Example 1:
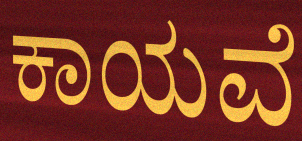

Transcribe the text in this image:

ಕಾಯವೆ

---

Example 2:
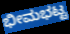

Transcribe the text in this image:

ಭೀಮಭಟ್ಟ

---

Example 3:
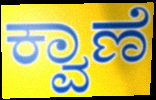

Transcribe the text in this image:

ಕ್ವಾಣೆ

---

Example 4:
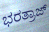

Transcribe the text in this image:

ಭರತ್ರಾಜ್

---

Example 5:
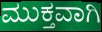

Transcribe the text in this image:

ಮುಕ್ತವಾಗಿ